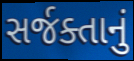
સર્જક્તાનું